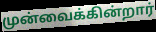
முன்வைக்கின்றார்